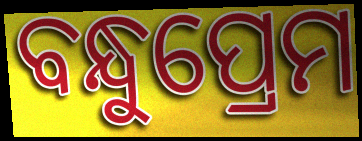
ବନ୍ଧୁପ୍ରେମ